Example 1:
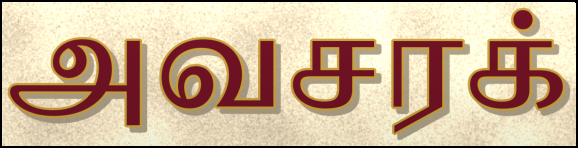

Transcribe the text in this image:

அவசரக்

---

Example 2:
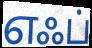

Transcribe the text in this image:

எஃப்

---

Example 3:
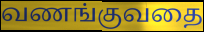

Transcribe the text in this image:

வணங்குவதை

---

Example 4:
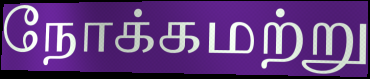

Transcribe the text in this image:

நோக்கமற்று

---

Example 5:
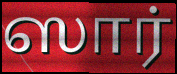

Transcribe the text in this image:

ஸார்